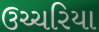
ઉચ્ચરિયા